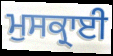
ਮੁਸਕ੍ਰਾਈ